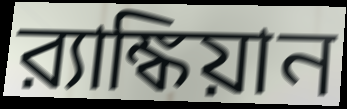
র‍্যাঙ্কিয়ান